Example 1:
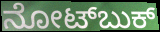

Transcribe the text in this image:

ನೋಟ್‌ಬುಕ್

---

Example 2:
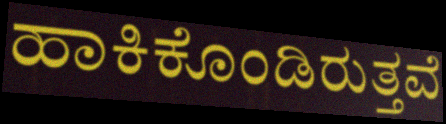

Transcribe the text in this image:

ಹಾಕಿಕೊಂಡಿರುತ್ತವೆ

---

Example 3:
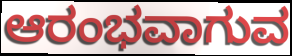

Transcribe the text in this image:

ಆರಂಭವಾಗುವ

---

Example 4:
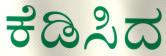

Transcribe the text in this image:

ಕೆಡಿಸಿದ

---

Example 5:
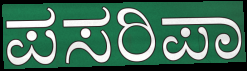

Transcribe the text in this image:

ಪಸರಿಪಾ